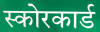
स्कोरकार्ड